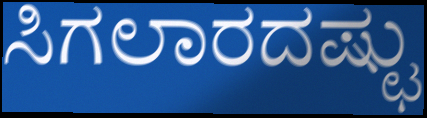
ಸಿಗಲಾರದಷ್ಟು